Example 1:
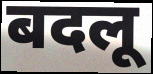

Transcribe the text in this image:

बदलू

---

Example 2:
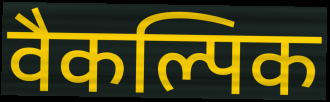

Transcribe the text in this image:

वैकल्पिक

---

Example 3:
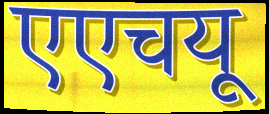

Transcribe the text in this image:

एएचयू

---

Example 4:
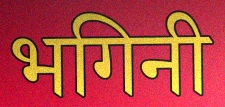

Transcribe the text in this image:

भगिनी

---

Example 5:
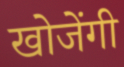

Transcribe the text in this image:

खोजेंगी